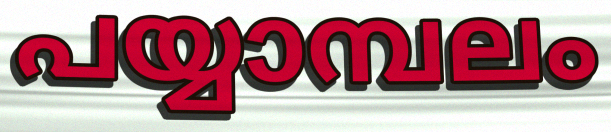
പയ്യാമ്പലം